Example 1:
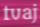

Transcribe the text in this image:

tuaj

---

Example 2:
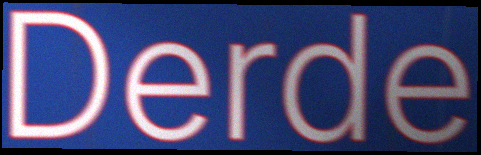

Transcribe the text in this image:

Derde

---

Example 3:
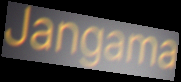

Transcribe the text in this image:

Jangama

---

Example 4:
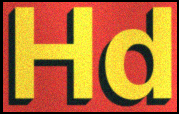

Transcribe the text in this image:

Hd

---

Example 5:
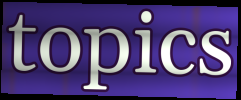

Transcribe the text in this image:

topics